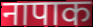
नापाक